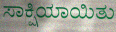
ಸಾಕ್ಷಿಯಾಯಿತು